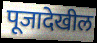
पूजादेखील